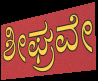
ಶೀಘ್ರವೇ